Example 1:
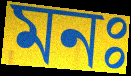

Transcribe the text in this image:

মনঃ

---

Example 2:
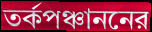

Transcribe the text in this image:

তর্কপঞ্চাননের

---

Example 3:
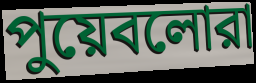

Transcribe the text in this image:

পুয়েবলোরা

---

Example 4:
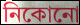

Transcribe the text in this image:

নিকোনো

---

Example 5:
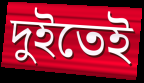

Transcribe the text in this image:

দুইতেই